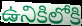
ఉనికిలోకి